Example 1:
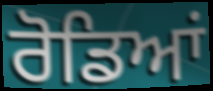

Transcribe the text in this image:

ਰੋਡਿਆਂ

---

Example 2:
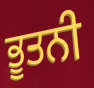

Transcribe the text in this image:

ਭੂਤਨੀ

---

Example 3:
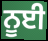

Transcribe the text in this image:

ਨੂਈ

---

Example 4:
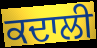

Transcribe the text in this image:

ਕਦਾਲੀ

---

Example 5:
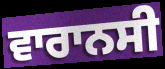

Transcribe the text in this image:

ਵਾਰਾਨਸੀ